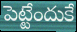
పెట్టేందుకే